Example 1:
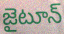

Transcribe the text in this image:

జైటూన్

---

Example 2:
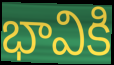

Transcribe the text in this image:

భావికి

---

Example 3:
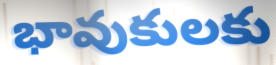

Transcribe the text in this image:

భావుకులకు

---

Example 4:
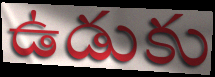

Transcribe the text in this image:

ఉడుకు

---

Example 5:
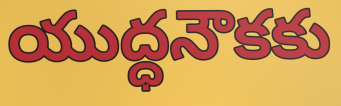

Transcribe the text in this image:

యుద్ధనౌకకు